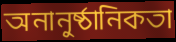
অনানুষ্ঠানিকতা